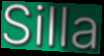
Silla